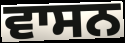
ਵਾਸਨ